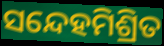
ସନ୍ଦେହମିଶ୍ରିତ